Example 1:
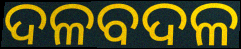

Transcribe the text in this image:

ଦଳବଦଳ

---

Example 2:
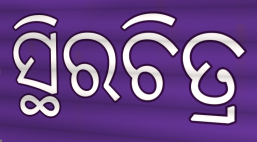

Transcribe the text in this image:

ସ୍ଥିରଚିତ୍ର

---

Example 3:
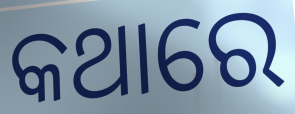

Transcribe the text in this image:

କଥାରେ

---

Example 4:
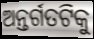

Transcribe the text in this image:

ଅନ୍ତର୍ଗତଟିକୁ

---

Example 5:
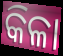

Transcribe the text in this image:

କିଳା